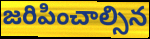
జరిపించాల్సిన